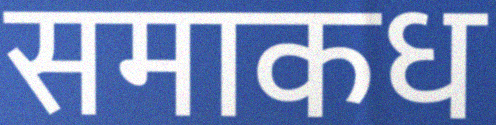
समाकध